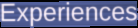
Experiences